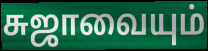
சுஜாவையும்